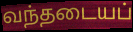
வந்தடையப்